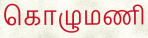
கொழுமணி